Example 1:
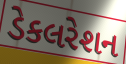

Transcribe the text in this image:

ડેકલરેશન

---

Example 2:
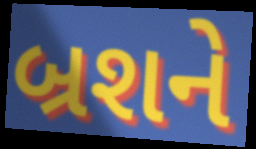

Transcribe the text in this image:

બ્રશને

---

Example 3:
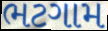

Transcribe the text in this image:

ભટગામ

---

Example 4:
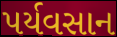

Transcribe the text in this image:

પર્યવસાન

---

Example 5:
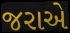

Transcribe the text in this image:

જરાએ